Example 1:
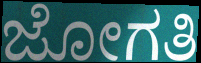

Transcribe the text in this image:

ಜೋಗತಿ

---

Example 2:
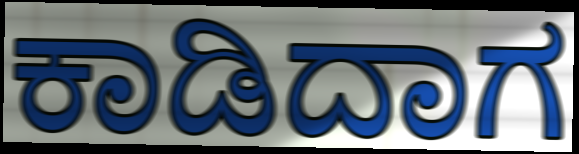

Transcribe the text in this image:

ಕಾಡಿದಾಗ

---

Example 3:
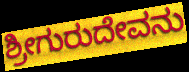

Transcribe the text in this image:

ಶ್ರೀಗುರುದೇವನು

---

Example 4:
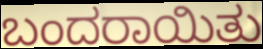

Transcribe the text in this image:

ಬಂದರಾಯಿತು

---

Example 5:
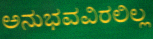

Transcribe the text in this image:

ಅನುಭವವಿರಲಿಲ್ಲ